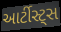
આર્ટીસ્ટ્સ